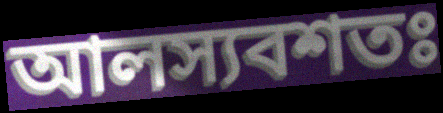
আলস্যবশতঃ